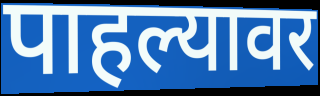
पाहल्यावर